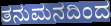
ತನುಮನದಿಂದ